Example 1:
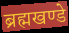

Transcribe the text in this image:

ब्रह्मखण्डे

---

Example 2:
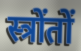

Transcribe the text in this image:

स्त्रोंतों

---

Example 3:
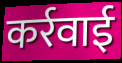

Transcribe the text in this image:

कर्रवाई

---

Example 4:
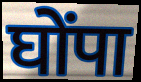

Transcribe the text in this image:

घोंपा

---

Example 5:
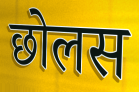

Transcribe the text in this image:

छोलस